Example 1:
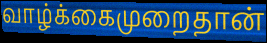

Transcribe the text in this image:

வாழ்க்கைமுறைதான்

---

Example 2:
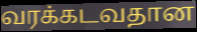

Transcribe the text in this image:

வரக்கடவதான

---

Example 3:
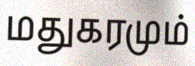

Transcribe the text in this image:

மதுகரமும்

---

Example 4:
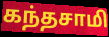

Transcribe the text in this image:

கந்தசாமி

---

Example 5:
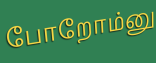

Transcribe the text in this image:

போறோம்னு